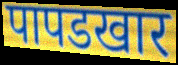
पापडखार